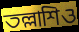
তল্লাশিও